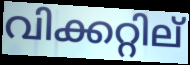
വിക്കറ്റില്